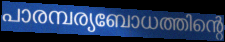
പാരമ്പര്യബോധത്തിന്റെ